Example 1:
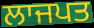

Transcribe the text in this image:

ਲਾਜਪਤ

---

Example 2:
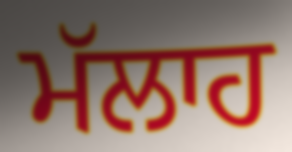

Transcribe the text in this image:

ਮੱਲਾਹ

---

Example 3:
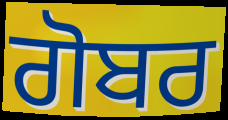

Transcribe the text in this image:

ਗੋਬਰ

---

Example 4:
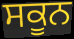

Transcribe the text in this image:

ਸਕੂਨ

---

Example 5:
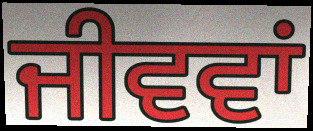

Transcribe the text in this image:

ਜੀਵਵਾਂ